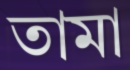
তামা